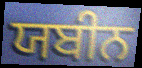
ਯਬੀਨ